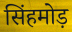
सिंहमोड़